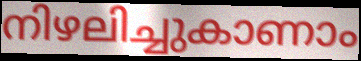
നിഴലിച്ചുകാണാം